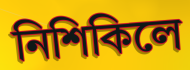
নিশিকিলে